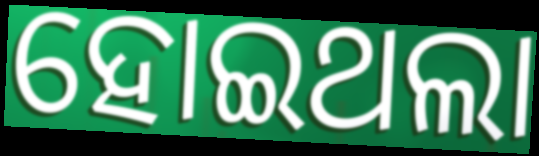
ହୋଇଥଲା